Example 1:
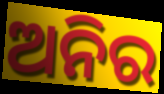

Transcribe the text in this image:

ଅନିର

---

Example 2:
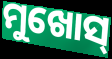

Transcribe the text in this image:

ମୁଖୋସ୍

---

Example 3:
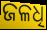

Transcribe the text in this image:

ଜଳଧି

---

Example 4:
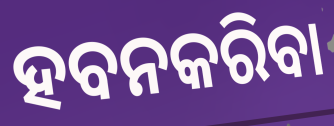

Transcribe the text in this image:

ହବନକରିବା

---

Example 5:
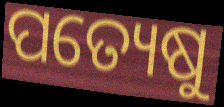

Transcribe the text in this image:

ପତ୍ୟେଷୁ